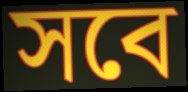
সবে